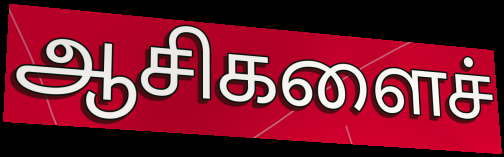
ஆசிகளைச்